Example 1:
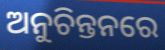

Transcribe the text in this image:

ଅନୁଚିନ୍ତନରେ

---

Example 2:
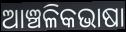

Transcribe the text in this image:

ଆଞ୍ଚଳିକଭାଷା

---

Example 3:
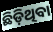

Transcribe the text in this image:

ଛିଡ଼ିଥିବା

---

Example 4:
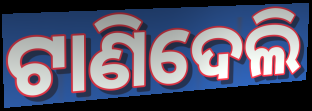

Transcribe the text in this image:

ଟାଣିଦେଲି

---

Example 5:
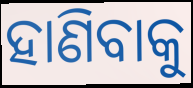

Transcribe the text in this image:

ହାଣିବାକୁ